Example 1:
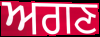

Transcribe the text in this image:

ਅਗਣ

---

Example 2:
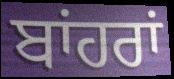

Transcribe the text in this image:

ਬਾਂਹਰਾਂ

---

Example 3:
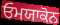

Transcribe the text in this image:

ਓਮਯਾਕੋਨ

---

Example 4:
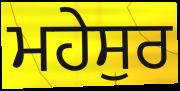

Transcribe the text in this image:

ਮਹੇਸੁਰ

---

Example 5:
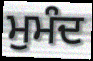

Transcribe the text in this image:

ਮੁਮੰਦ